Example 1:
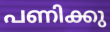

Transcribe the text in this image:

പണിക്കു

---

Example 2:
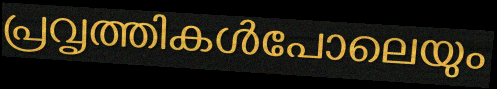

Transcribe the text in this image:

പ്രവൃത്തികൾപോലെയും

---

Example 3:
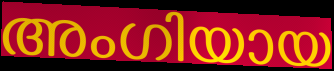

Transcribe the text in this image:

അംഗിയായ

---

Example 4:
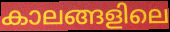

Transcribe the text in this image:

കാലങ്ങളിലെ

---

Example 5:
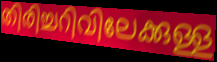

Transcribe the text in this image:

തിരിച്ചറിവിലേക്കുള്ള